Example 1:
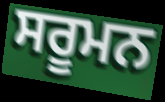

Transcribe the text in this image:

ਸਰੂਮਨ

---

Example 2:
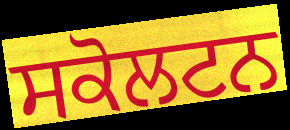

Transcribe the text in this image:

ਸਕੋਲਟਨ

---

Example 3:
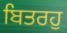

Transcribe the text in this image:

ਬਿਤਰਹੁ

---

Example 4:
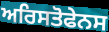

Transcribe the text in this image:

ਅਰਿਸਤੋਫੇਨਸ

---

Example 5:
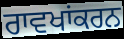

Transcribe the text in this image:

ਰਾਵਖਾਂਕਰਨ